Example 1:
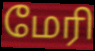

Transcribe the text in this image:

மேரி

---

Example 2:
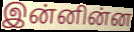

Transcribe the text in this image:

இன்னின்ன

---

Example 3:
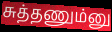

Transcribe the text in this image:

சுத்தணும்னு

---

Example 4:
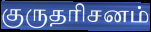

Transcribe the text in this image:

குருதரிசனம்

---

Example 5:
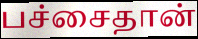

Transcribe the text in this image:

பச்சைதான்